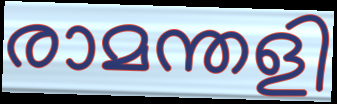
രാമന്തളി